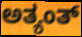
ಅತ್ಯಂತ್